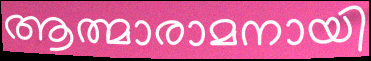
ആത്മാരാമനായി